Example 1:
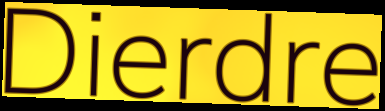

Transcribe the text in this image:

Dierdre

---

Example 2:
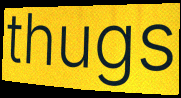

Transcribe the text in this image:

thugs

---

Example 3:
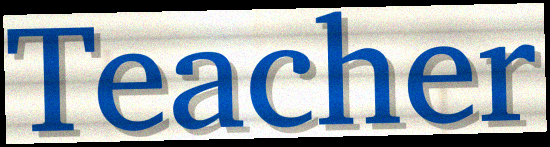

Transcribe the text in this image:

Teacher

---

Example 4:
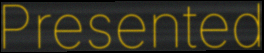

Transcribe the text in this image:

Presented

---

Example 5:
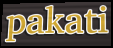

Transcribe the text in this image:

pakati